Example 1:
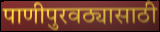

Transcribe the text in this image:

पाणीपुरवठ्यासाठी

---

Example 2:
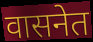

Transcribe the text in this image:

वासनेत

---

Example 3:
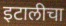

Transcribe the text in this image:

इटालीचा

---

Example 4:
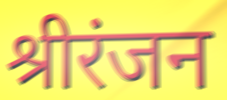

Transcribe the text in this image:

श्रीरंजन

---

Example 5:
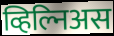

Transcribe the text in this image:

व्हिल्निअस